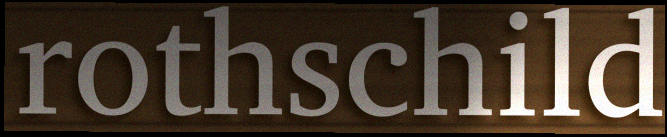
rothschild